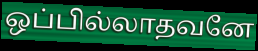
ஒப்பில்லாதவனே